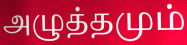
அழுத்தமும்